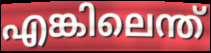
എങ്കിലെന്ത്